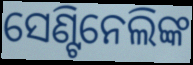
ସେଣ୍ଟିନେଲିଙ୍କ